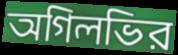
অগিলভির